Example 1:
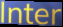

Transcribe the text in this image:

Inter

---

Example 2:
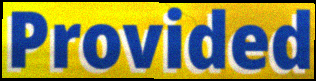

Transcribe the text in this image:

Provided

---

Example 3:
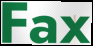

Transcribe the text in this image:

Fax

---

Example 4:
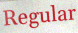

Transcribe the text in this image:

Regular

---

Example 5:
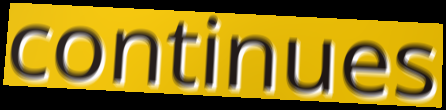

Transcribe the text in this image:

continues